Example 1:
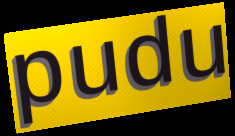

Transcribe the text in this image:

pudu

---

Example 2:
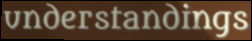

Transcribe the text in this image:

understandings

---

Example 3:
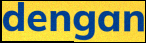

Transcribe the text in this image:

dengan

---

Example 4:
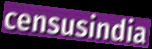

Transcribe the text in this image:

censusindia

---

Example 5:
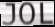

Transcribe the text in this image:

JOL